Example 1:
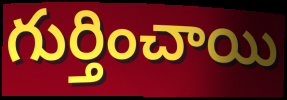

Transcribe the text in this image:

గుర్తించాయి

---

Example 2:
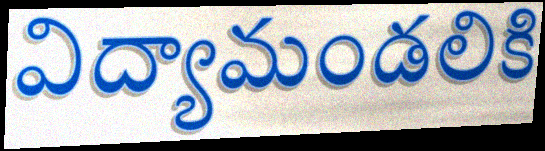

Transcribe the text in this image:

విద్యామండలికి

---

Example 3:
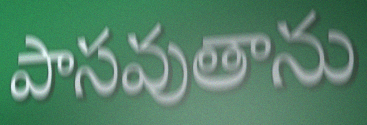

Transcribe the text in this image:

పాసవుతాను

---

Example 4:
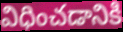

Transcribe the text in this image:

విధించడానికి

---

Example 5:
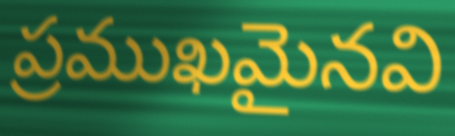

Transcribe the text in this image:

ప్రముఖమైనవి